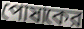
পোষাকের